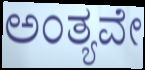
ಅಂತ್ಯವೇ